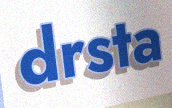
drsta